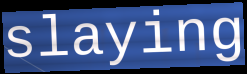
slaying